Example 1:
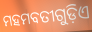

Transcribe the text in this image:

ମହମବତୀଗୁଡ଼ିଏ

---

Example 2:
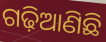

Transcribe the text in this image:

ଗଢ଼ିଆଣିଛି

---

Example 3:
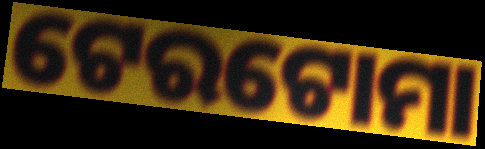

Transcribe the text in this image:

ଟେରଟୋମା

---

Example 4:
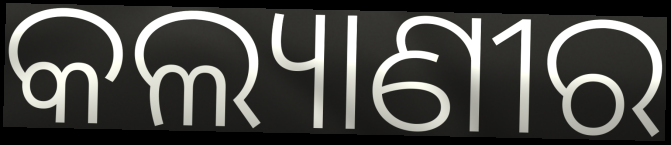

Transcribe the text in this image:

କଲ୍ୟାଣୀର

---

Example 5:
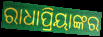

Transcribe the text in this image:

ରାଧାପ୍ରିୟାଙ୍କର